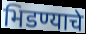
भिडण्याचे